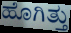
ಹೊಗಿತ್ತು